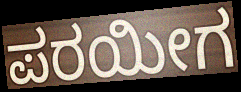
ಪರಯೀಗ